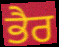
ਭੈਰ